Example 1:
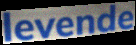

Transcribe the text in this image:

levende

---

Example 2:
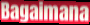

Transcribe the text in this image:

Bagaimana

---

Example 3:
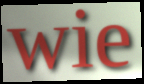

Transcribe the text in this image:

wie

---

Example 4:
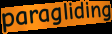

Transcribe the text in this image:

paragliding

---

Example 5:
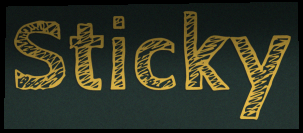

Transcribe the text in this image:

Sticky